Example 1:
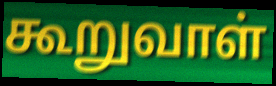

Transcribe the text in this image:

கூறுவாள்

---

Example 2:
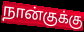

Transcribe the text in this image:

நான்குக்கு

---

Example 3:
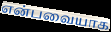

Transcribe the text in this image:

என்பவையாக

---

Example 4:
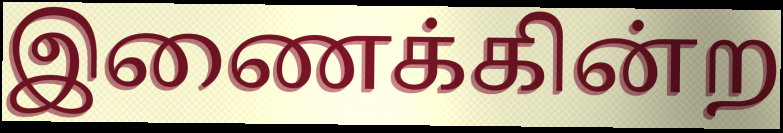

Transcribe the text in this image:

இணைக்கின்ற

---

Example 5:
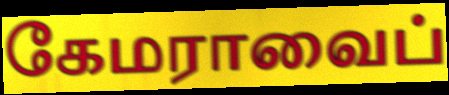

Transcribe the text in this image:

கேமராவைப்